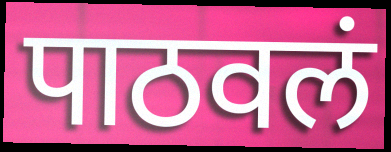
पाठवलं